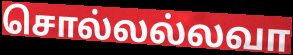
சொல்லல்லவா